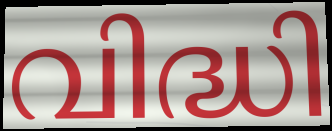
വിദ്ധി